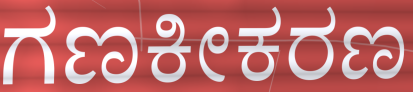
ಗಣಕೀಕರಣ